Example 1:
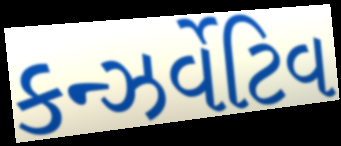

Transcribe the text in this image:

કન્ઝર્વેટિવ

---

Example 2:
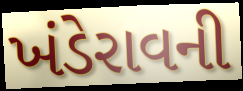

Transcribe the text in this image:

ખંડેરાવની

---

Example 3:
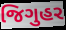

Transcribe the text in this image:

જિગુહર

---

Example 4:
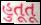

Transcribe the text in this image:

હુતૂતૂ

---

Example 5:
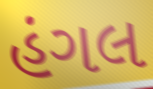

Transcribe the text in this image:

હંગલ